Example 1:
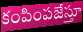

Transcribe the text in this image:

కంపింపజేస్తూ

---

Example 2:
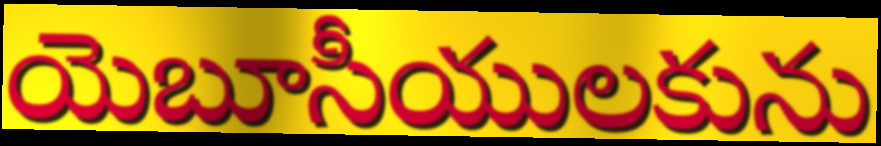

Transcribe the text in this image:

యెబూసీయులకును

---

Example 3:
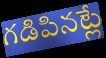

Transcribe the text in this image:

గడిపినట్లే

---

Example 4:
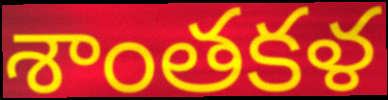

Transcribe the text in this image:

శాంతకళ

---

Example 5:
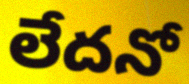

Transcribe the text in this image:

లేదనో